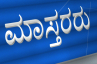
ಮಾಸ್ತರರು